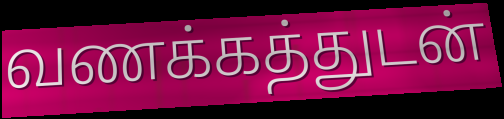
வணக்கத்துடன்